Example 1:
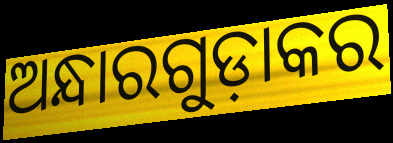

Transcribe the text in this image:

ଅନ୍ଧାରଗୁଡ଼ାକର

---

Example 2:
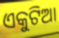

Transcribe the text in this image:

ଏକୁଟିଆ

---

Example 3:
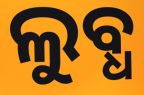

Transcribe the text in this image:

ଲୁବ୍ଧ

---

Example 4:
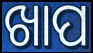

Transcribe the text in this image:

ଖାପ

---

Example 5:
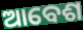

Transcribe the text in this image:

ଆବେଶ